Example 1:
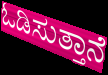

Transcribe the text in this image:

ಓಡಿಸುತ್ತಾನೆ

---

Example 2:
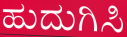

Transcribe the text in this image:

ಹುದುಗಿಸಿ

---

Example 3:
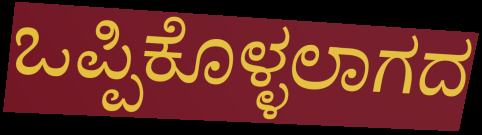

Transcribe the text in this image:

ಒಪ್ಪಿಕೊಳ್ಳಲಾಗದ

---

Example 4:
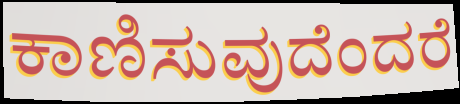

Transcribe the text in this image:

ಕಾಣಿಸುವುದೆಂದರೆ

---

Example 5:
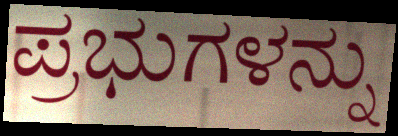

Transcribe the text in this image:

ಪ್ರಭುಗಳನ್ನು